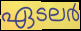
ഏടലർ